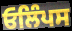
ਓਲਿੰਪਸ